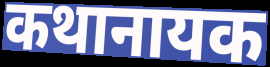
कथानायक